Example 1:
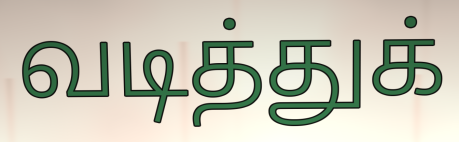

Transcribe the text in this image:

வடித்துக்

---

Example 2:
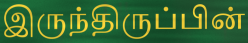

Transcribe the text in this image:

இருந்திருப்பின்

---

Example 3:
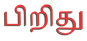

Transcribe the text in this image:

பிறிது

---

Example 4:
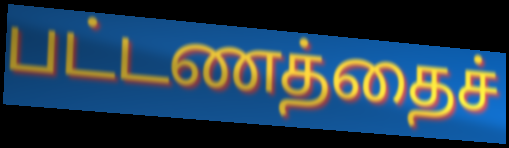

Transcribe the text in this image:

பட்டணத்தைச்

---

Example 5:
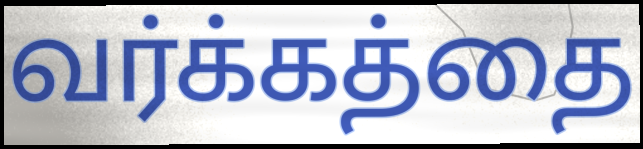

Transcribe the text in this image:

வர்க்கத்தை